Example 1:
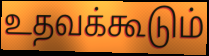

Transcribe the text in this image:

உதவக்கூடும்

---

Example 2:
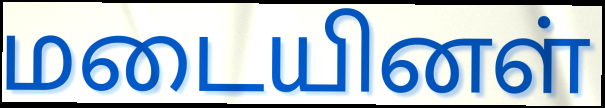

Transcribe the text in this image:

மடையினள்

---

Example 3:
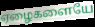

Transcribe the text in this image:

ஏழைகளையே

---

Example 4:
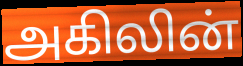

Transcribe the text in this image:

அகிலின்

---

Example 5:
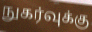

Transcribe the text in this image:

நுகர்வுக்கு